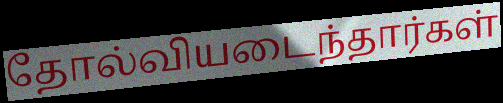
தோல்வியடைந்தார்கள்